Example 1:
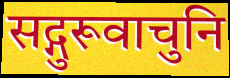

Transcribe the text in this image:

सद्गुरूवाचुनि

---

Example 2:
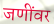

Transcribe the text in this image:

जणींवर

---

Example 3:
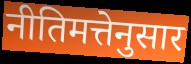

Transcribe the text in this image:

नीतिमत्तेनुसार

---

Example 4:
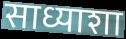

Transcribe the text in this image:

साध्याशा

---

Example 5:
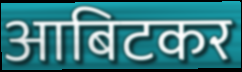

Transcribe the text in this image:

आबिटकर